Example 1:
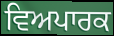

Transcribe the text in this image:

ਵਿਅਪਾਰਕ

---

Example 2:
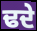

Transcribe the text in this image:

ਢਦੇ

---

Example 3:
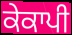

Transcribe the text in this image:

ਕੇਕਾਪੀ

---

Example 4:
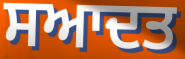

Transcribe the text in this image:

ਸਆਦਤ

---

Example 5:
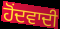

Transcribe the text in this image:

ਹੋਂਦਵਾਦੀ